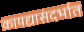
कायद्यासंदर्भात